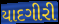
યાદગીરી